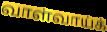
வாள்வாய்க்